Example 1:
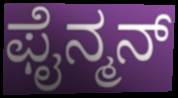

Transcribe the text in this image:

ಫೈನ್ಮನ್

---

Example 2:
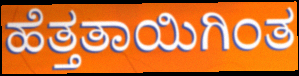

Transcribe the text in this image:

ಹೆತ್ತತಾಯಿಗಿಂತ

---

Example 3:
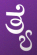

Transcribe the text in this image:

ತ್ಯೆ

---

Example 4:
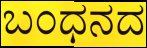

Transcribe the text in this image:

ಬಂಧನದ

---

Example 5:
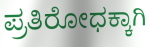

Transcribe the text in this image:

ಪ್ರತಿರೋಧಕ್ಕಾಗಿ